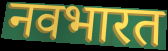
नवभारत